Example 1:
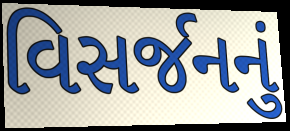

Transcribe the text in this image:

વિસર્જનનું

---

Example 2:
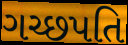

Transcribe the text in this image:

ગચ્છપતિ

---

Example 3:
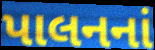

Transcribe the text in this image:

પાલનનાં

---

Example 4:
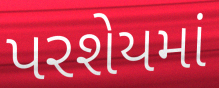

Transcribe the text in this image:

પરશેયમાં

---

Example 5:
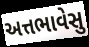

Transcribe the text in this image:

અત્તભાવેસુ